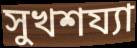
সুখশয্যা